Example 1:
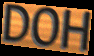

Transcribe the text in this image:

DOH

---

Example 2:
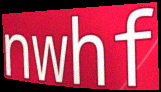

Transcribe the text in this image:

nwhf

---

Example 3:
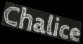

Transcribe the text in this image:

Chalice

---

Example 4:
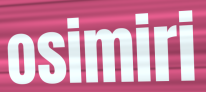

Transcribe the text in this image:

osimiri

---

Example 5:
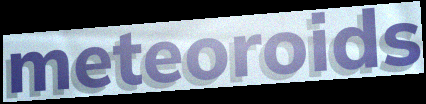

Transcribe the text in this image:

meteoroids